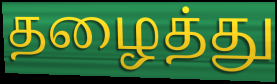
தழைத்து